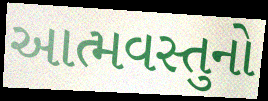
આત્મવસ્તુનો